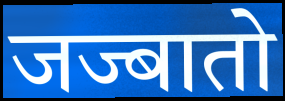
जज्बातो